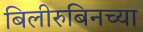
बिलीरुबिनच्या